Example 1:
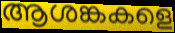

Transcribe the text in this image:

ആശങ്കകളെ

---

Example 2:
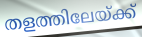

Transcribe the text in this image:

തളത്തിലേയ്ക്ക്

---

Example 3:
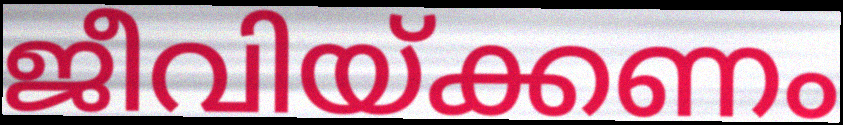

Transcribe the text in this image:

ജീവിയ്ക്കണം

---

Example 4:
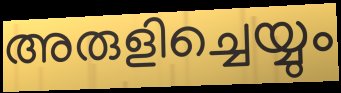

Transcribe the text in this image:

അരുളിച്ചെയ്യും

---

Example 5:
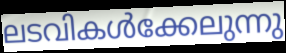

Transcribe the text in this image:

ലടവികൾക്കേലുന്നു